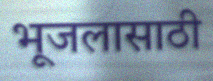
भूजलासाठी